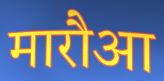
मारौआ